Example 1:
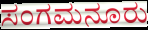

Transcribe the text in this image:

ಸಂಗಮನೂರು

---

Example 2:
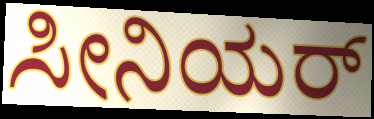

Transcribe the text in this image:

ಸೀನಿಯರ್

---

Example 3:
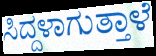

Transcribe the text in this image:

ಸಿದ್ದಳಾಗುತ್ತಾಳೆ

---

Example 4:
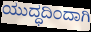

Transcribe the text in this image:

ಯುದ್ಧದಿಂದಾಗಿ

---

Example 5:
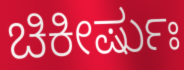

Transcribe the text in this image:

ಚಿಕೀರ್ಷುಃ